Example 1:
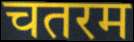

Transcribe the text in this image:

चतरम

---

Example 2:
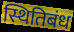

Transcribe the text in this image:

स्थितिबंध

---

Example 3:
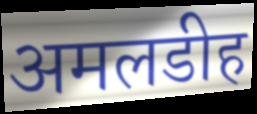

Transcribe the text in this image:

अमलडीह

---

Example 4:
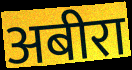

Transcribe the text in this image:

अबीरा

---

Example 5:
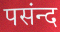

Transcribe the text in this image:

पसंन्द